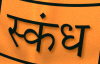
स्कंध